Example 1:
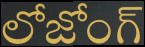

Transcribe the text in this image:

లోజోంగ్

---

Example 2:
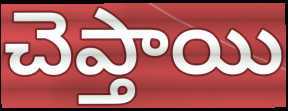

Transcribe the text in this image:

చెప్తాయి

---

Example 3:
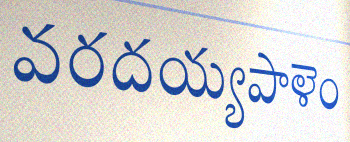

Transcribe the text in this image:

వరదయ్యపాళెం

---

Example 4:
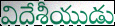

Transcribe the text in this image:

విదేశీయుడు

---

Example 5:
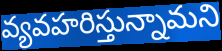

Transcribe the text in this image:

వ్యవహరిస్తున్నామని